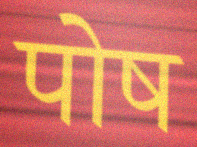
पोष